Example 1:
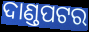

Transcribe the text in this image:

ଦାଣ୍ଡପଟର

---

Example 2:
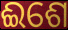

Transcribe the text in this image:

ଈଶେ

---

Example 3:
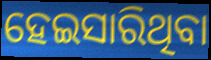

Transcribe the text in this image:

ହେଇସାରିଥିବା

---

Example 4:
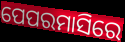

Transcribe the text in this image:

ପେପରମାସିରେ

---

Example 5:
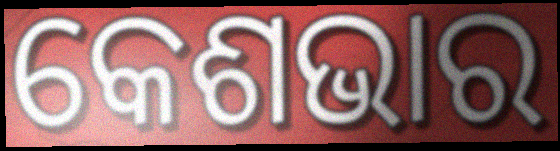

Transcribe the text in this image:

କେଶଭାର